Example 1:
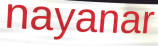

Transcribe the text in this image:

nayanar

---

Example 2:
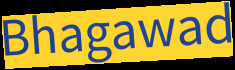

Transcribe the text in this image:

Bhagawad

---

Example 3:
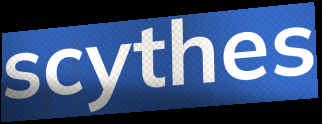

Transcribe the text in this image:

scythes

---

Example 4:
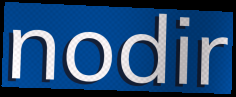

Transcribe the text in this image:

nodir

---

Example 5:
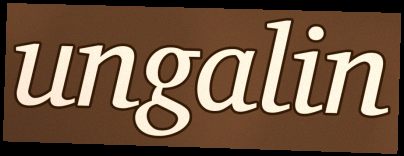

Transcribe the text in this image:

ungalin